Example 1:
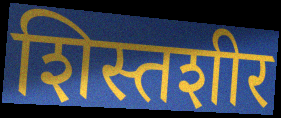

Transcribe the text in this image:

शिस्तशीर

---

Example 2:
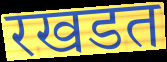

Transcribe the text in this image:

रखडत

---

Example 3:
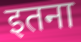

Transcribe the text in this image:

इतना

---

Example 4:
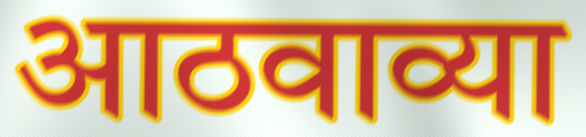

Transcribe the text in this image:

आठवाव्या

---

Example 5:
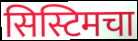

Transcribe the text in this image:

सिस्टिमचा